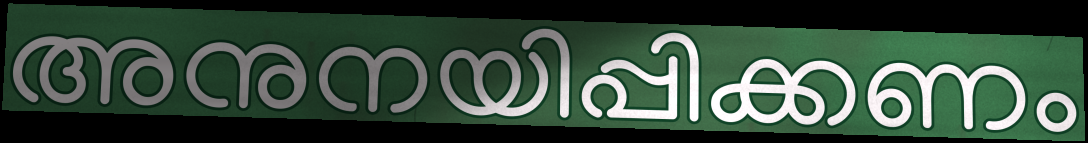
അനുനയിപ്പിക്കണം